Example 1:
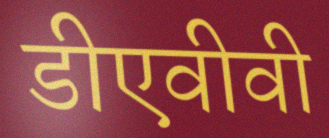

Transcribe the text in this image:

डीएवीवी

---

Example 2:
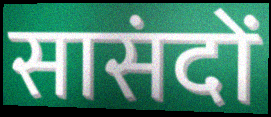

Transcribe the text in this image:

सासंदों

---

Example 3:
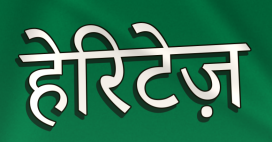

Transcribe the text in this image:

हेरिटेज़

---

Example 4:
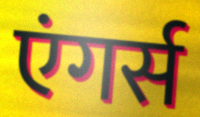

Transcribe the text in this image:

एंगर्स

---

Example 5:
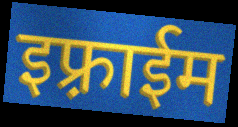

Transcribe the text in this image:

इफ़्राईम